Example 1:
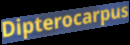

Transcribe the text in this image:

Dipterocarpus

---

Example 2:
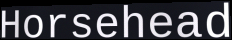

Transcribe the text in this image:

Horsehead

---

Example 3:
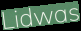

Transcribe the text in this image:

Lidwas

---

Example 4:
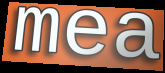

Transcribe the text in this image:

mea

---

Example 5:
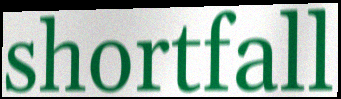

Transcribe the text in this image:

shortfall